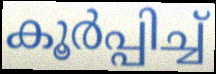
കൂർപ്പിച്ച്